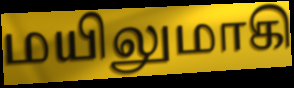
மயிலுமாகி